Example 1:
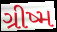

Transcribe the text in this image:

ગ્રીષ્મ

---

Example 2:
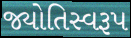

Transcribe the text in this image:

જ્યોતિસ્વરૂપ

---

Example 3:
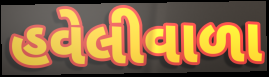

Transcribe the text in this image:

હવેલીવાળા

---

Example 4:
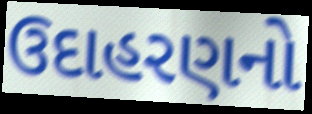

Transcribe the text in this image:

ઉદાહરણનો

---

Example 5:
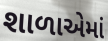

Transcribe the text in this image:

શાળાએમાં